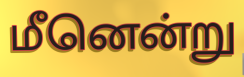
மீனென்று